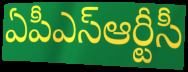
ఏపీఎస్ఆర్టీసీ